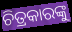
ଚିତ୍ରକାରଙ୍କୁ